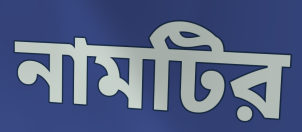
নামটির